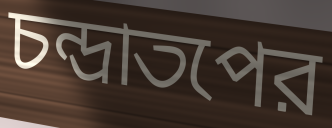
চন্দ্রাতপের